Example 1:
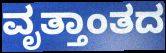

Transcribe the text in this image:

ವೃತ್ತಾಂತದ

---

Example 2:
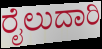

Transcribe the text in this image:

ರೈಲುದಾರಿ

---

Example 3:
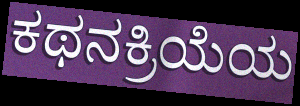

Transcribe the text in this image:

ಕಥನಕ್ರಿಯೆಯ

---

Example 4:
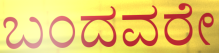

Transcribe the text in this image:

ಬಂದವರೇ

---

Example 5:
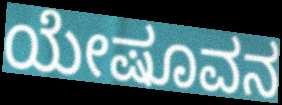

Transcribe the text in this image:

ಯೇಷೂವನ